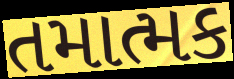
તમાત્મક